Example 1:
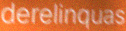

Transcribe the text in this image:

derelinquas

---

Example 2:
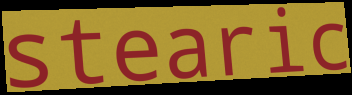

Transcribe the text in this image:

stearic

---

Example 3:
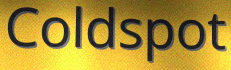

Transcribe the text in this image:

Coldspot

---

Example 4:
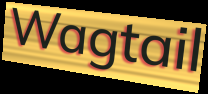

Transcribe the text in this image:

Wagtail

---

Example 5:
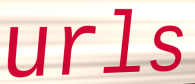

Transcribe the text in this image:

urls